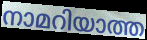
നാമറിയാത്ത